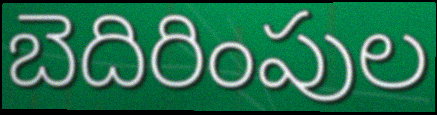
బెదిరింపుల